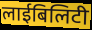
लाईबिलिटी